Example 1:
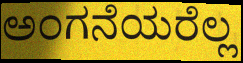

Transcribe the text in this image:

ಅಂಗನೆಯರೆಲ್ಲ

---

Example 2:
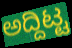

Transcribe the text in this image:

ಅದ್ದಿಟ್ಟ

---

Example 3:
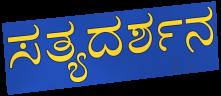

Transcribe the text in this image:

ಸತ್ಯದರ್ಶನ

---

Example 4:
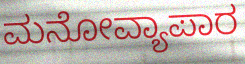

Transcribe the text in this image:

ಮನೋವ್ಯಾಪಾರ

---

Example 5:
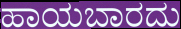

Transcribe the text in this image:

ಹಾಯಬಾರದು